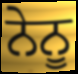
ਨੇਨੂ